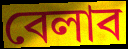
বেলাব